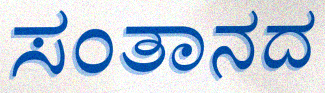
ಸಂತಾನದ